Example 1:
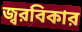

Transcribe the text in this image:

জ্বরবিকার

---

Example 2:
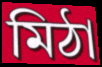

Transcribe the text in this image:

মিঠা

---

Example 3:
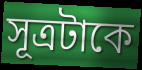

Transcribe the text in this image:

সূত্রটাকে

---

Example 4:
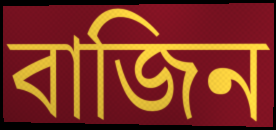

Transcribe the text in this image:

বাজিন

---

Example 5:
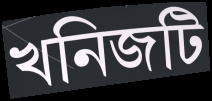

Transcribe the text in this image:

খনিজটি